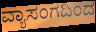
ವ್ಯಾಸಂಗದಿಂದ